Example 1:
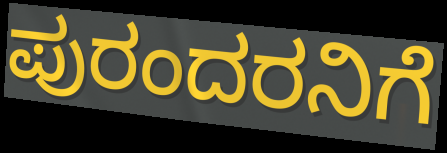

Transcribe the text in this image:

ಪುರಂದರನಿಗೆ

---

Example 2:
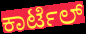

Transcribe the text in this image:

ಕಾರ್ಟೆಲ್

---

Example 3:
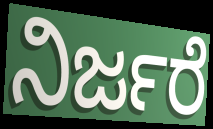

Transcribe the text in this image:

ನಿರ್ಜರೆ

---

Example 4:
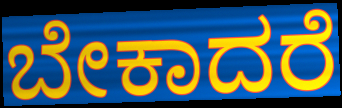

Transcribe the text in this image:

ಬೇಕಾದರೆ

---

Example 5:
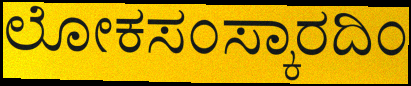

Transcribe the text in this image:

ಲೋಕಸಂಸ್ಕಾರದಿಂ